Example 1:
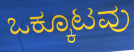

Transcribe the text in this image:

ಒಕ್ಕೂಟವು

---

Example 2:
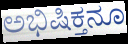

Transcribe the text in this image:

ಅಭಿಷಿಕ್ತನೂ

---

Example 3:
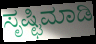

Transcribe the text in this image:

ಸೃಷ್ಟಿಮಾಡಿ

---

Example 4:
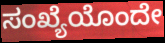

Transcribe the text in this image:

ಸಂಖ್ಯೆಯೊಂದೇ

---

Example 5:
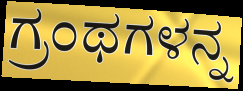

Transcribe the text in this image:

ಗ್ರಂಥಗಳನ್ನ